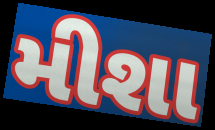
મીશા